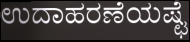
ಉದಾಹರಣೆಯಷ್ಟೆ